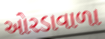
ઓરડાવાળા